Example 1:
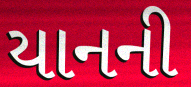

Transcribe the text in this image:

યાનની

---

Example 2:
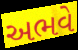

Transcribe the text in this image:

અભવે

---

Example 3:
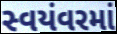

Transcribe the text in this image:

સ્વયંવરમાં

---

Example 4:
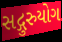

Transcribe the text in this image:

સદ્ગુરુયોગ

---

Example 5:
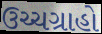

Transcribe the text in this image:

ઉચ્ચગ્રાહો